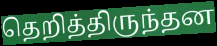
தெறித்திருந்தன